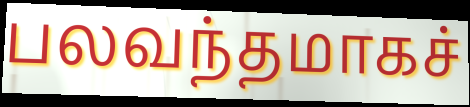
பலவந்தமாகச்